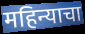
महिन्याचा